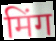
मिंग